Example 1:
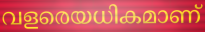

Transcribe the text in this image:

വളരെയധികമാണ്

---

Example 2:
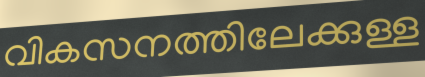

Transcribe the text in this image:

വികസനത്തിലേക്കുള്ള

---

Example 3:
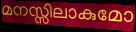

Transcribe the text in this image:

മനസ്സിലാകുമോ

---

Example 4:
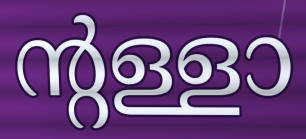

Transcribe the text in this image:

ന്റള്ളാ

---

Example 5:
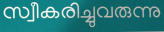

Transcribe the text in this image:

സ്വീകരിച്ചുവരുന്നു